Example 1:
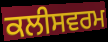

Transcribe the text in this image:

ਕਲੀਸਵਰਮ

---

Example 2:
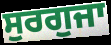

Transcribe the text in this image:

ਸੁਰਗੁਜਾ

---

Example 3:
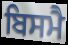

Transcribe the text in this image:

ਬਿਸਮੈ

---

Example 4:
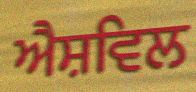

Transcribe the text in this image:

ਐਸ਼ਵਿਲ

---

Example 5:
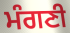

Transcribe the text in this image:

ਮੰਗਣੀ